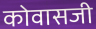
कोवासजी